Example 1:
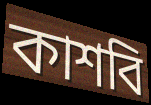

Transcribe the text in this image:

কাশবি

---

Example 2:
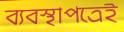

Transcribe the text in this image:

ব্যবস্থাপত্রেই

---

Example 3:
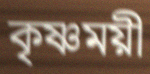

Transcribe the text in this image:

কৃষ্ণময়ী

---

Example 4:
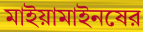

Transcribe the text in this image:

মাইয়ামাইনষের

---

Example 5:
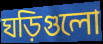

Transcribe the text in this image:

ঘড়িগুলো